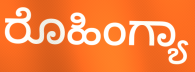
ರೊಹಿಂಗ್ಯಾ